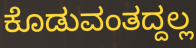
ಕೊಡುವಂತದ್ದಲ್ಲ